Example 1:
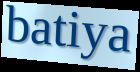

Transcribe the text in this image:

batiya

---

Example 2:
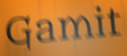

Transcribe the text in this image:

Gamit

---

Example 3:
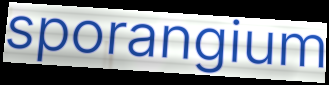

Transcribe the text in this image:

sporangium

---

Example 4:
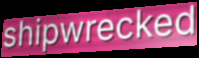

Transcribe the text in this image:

shipwrecked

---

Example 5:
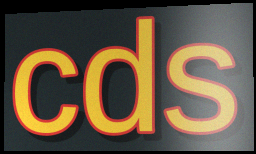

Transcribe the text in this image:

cds